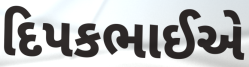
દિપકભાઈએ